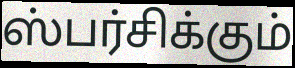
ஸ்பர்சிக்கும்